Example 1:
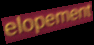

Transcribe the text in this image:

elopement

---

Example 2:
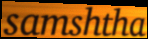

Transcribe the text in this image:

samshtha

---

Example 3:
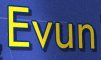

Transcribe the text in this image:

Evun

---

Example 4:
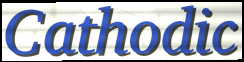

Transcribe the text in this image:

Cathodic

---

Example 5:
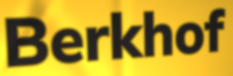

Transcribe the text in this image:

Berkhof